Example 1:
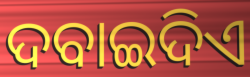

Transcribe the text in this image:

ଦବାଇଦିଏ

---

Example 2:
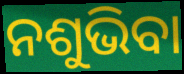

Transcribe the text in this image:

ନଶୁଭିବା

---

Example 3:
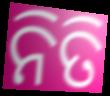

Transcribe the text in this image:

ନିତି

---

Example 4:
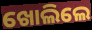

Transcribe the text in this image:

ଖୋଲିଲେ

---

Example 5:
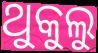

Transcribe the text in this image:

ଥୁକୁଲୁ